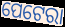
ପେଟେରା